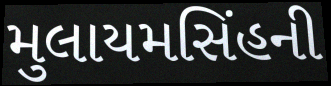
મુલાયમસિંહની